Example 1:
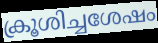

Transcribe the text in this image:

ക്രൂശിച്ചശേഷം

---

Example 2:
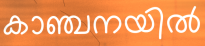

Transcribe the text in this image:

കാഞ്ചനയിൽ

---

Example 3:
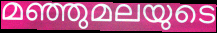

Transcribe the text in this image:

മഞ്ഞുമലയുടെ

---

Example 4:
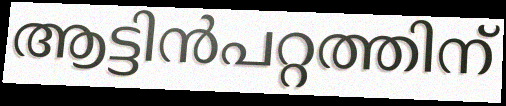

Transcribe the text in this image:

ആട്ടിൻപറ്റത്തിന്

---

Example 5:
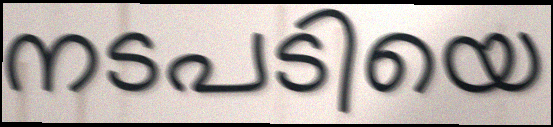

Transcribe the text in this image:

നടപടിയെ